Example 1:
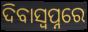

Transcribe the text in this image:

ଦିବାସ୍ବପ୍ନରେ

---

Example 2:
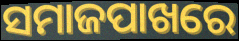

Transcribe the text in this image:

ସମାଜପାଖରେ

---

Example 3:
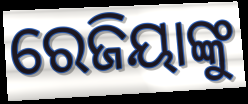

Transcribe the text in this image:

ରେଜିୟାଙ୍କୁ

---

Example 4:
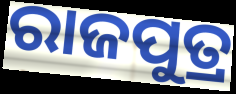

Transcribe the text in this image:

ରାଜପୁତ୍ର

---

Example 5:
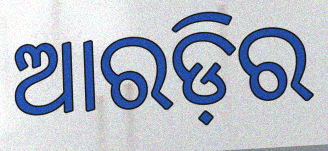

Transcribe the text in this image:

ଆରଡ଼ିର